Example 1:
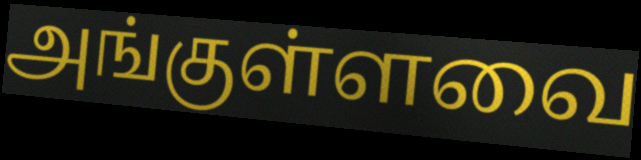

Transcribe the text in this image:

அங்குள்ளவை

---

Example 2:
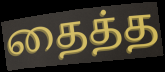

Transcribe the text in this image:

தைத்த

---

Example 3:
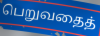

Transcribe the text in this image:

பெறுவதைத்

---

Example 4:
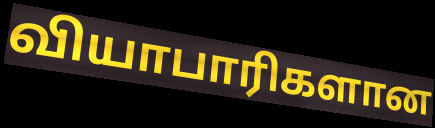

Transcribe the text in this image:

வியாபாரிகளான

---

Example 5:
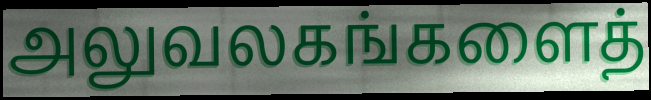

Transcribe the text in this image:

அலுவலகங்களைத்